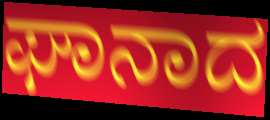
ಘಾನಾದ